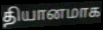
தியானமாக